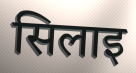
सिलाइ